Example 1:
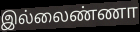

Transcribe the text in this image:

இல்லைண்ணா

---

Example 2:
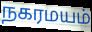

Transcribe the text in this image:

நகரமயம்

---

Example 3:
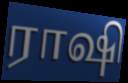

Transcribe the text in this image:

ராஷி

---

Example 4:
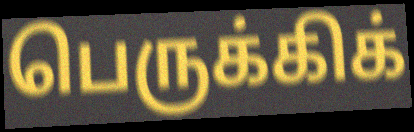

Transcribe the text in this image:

பெருக்கிக்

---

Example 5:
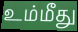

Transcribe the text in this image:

உம்மீது